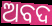
ଅବଦ